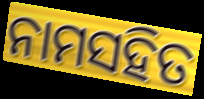
ନାମସହିତ